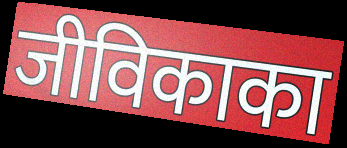
जीविकाका